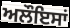
ਅਲੌਇਸਾਂ